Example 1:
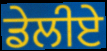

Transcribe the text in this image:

ਡੇਲੀਏ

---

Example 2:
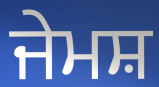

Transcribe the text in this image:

ਜੇਮਸ਼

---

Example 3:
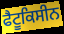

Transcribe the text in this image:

ਫੈਟੂਕਿਸੀਨ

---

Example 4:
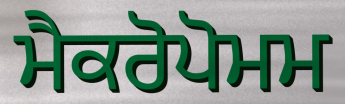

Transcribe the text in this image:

ਮੈਕਰੋਪੋਮਮ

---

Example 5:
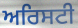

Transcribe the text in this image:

ਅਰਿਸਟੀ